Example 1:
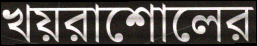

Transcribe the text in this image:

খয়রাশোলের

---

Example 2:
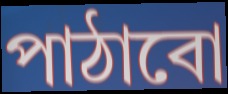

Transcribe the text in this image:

পাঠাবো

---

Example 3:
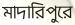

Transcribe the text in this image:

মাদারিপুরে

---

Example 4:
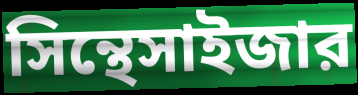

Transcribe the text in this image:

সিন্থেসাইজার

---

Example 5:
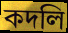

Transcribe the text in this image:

কদলি